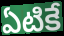
ఏటికే